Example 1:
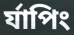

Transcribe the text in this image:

র্যাপিং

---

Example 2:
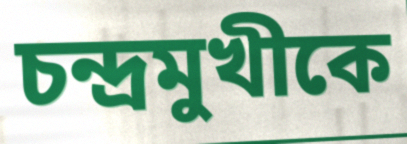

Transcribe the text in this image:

চন্দ্রমুখীকে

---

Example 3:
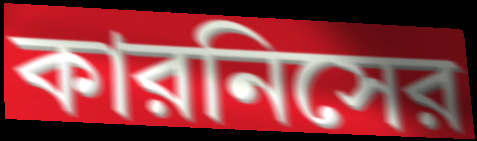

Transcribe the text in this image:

কারনিসের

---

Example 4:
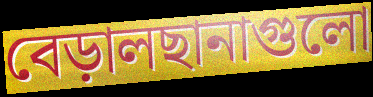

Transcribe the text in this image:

বেড়ালছানাগুলো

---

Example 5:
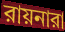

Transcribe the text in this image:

রায়নারা